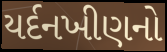
યર્દનખીણનો